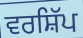
ਵਰਸ਼ਿੱਪ